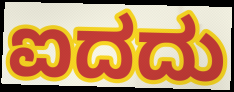
ಐದದು